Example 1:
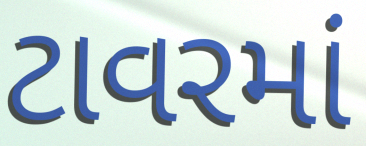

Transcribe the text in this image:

ટાવરમાં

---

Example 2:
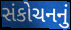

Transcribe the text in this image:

સંકોચનનું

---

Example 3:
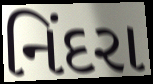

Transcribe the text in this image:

નિંદરા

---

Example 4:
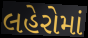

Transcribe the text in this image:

લહેરોમાં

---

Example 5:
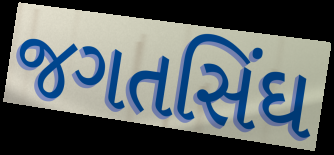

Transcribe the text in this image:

જગતસિંઘ